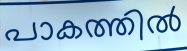
പാകത്തിൽ